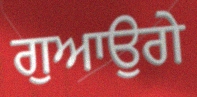
ਗੁਆਉਗੇ